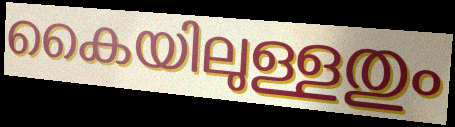
കൈയിലുള്ളതും